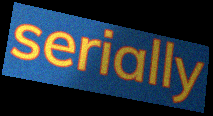
serially